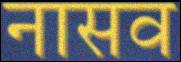
नासव